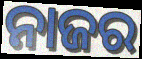
ନାଜର